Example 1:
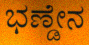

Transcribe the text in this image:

ಭಣ್ಡೇನ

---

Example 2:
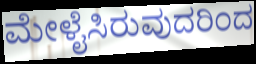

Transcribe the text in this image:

ಮೇಳೈಸಿರುವುದರಿಂದ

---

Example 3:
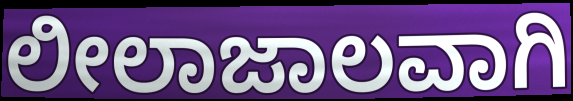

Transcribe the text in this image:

ಲೀಲಾಜಾಲವಾಗಿ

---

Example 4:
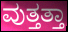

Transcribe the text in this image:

ವುತ್ತತ್ತಾ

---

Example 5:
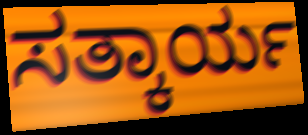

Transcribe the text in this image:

ಸತ್ಕಾರ್ಯ